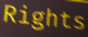
Rights